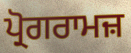
ਪ੍ਰੋਗਰਾਮਜ਼